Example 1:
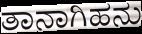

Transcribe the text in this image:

ತಾನಾಗಿಹನು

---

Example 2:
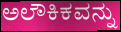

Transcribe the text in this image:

ಅಲೌಕಿಕವನ್ನು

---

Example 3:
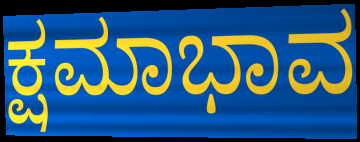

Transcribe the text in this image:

ಕ್ಷಮಾಭಾವ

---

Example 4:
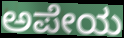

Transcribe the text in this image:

ಅಪೇಯ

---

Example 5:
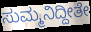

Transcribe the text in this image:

ಸುಮ್ಮನಿದ್ದೀತೇ